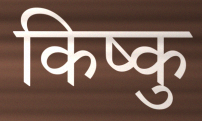
किष्कु